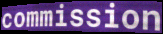
commission